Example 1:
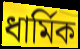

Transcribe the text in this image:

ধাৰ্মিক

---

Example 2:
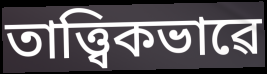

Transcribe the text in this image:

তাত্ত্বিকভাৱে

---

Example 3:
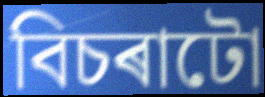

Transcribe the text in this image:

বিচৰাটো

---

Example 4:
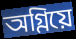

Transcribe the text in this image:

অগ্নিয়ে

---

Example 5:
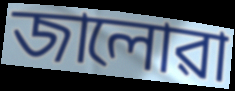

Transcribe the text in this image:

জালোৱা